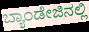
ಬ್ಯಾಂಡೇಜಿನಲ್ಲಿ